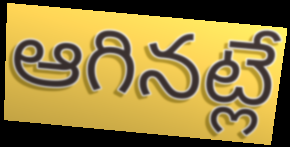
ఆగినట్లే